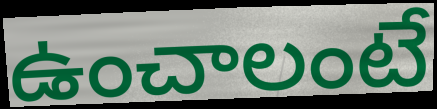
ఉంచాలంటే